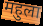
महुला